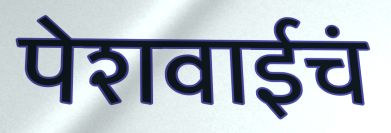
पेशवाईचं